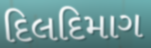
દિલદિમાગ